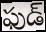
ఫుడ్